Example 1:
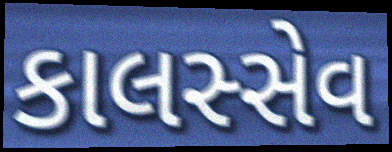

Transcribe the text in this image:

કાલસ્સેવ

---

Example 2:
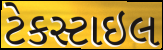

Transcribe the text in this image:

ટેકસ્ટાઇલ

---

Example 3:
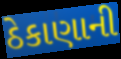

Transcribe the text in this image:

ઠેકાણાની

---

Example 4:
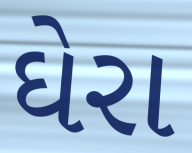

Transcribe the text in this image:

ઘેરા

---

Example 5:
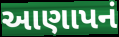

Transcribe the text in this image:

આણાપનં